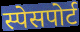
स्पेसपोर्ट